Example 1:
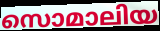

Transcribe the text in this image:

സൊമാലിയ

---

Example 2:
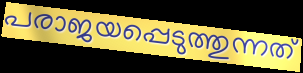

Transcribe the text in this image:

പരാജയപ്പെടുത്തുന്നത്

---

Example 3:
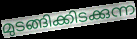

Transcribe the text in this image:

മുടങ്ങിക്കിടക്കുന്ന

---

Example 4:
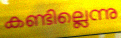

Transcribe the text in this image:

കണ്ടില്ലെന്നു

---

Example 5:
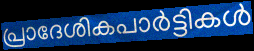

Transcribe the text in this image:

പ്രാദേശികപാർട്ടികൾ